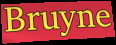
Bruyne